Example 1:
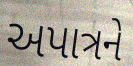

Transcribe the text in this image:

અપાત્રને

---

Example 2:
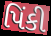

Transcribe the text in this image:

પિંકી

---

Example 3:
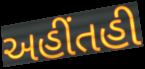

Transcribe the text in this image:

અહીંતહી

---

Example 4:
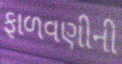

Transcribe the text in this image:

ફાળવણીની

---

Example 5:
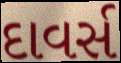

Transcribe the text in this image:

દાવર્સ